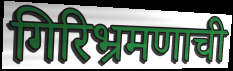
गिरिभ्रमणाची